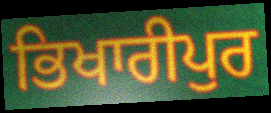
ਭਿਖਾਰੀਪੁਰ